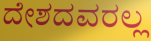
ದೇಶದವರಲ್ಲ